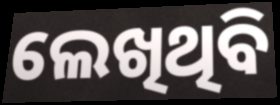
ଲେଖିଥିବି